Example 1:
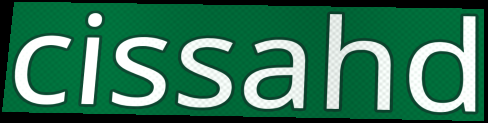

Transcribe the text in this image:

cissahd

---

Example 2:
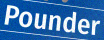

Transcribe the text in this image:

Pounder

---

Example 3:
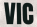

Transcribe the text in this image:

VIC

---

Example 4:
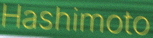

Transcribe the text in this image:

Hashimoto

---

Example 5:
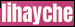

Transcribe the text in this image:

lihayche